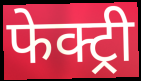
फेक्ट्री